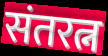
संतरत्न